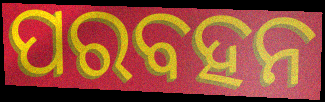
ପରବହନ